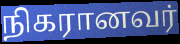
நிகரானவர்